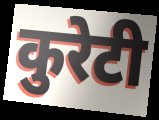
कुरेटी